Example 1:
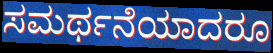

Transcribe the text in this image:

ಸಮರ್ಥನೆಯಾದರೂ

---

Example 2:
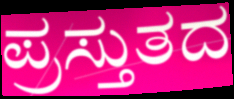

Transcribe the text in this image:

ಪ್ರಸ್ತುತದ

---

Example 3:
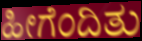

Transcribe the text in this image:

ಹೀಗೆಂದಿತು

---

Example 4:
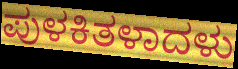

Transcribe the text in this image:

ಪುಳಕಿತಳಾದಳು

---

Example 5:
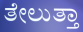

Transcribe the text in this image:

ತೇಲುತ್ತಾ